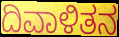
ದಿವಾಳಿತನ